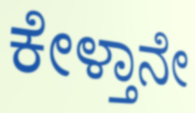
ಕೇಳ್ತಾನೇ